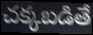
చక్కబడితే